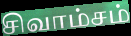
சிவாம்சம்